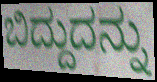
ಬಿದ್ದುದನ್ನು